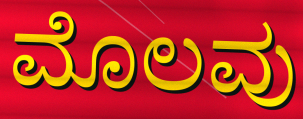
ಮೊಲವು